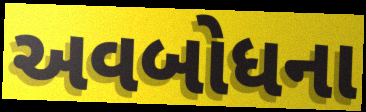
અવબોધના